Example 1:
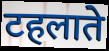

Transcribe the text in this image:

टहलाते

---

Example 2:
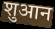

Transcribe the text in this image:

शुआन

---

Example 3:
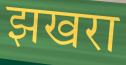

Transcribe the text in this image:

झखरा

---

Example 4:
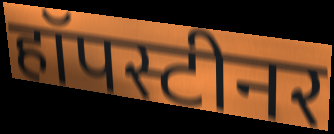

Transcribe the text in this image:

हॉपस्टीनर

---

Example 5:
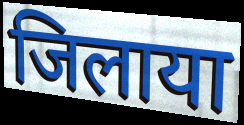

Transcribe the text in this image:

जिलाया